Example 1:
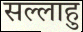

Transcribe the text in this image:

सल्लाहु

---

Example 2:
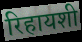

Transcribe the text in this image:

रिहायशी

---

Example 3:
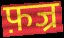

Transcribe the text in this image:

फ़ज्र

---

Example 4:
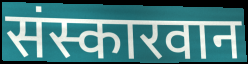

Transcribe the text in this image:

संस्कारवान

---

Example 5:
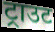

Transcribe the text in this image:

ट्राउट